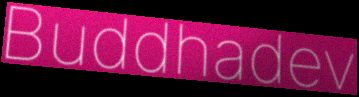
Buddhadev